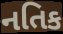
નતિક